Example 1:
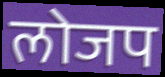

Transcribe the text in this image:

लोजप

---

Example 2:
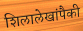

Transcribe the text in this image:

शिलालेखांपैकी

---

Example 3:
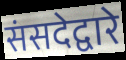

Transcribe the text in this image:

संसदेद्वारे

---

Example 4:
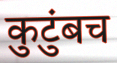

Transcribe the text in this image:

कुटुंबच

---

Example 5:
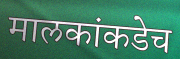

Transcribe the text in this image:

मालकांकडेच